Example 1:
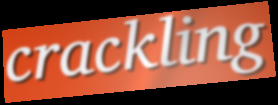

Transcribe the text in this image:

crackling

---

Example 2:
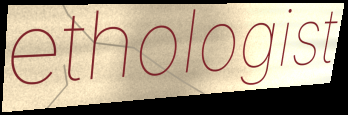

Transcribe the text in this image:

ethologist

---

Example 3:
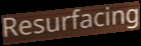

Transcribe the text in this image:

Resurfacing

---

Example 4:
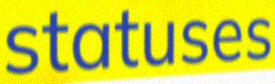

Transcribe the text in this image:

statuses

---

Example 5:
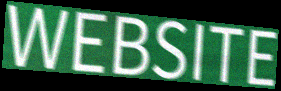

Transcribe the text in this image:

WEBSITE